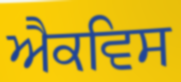
ਐਕਵਿਸ